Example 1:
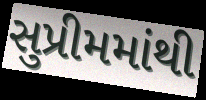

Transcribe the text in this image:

સુપ્રીમમાંથી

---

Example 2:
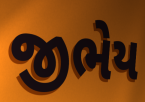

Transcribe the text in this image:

જીભેય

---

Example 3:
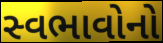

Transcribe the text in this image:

સ્વભાવોનો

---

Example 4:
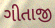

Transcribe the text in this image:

ગીતાજી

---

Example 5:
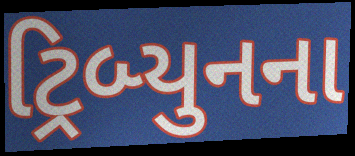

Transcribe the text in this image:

ટ્રિબ્યુનના